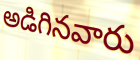
అడిగినవారు